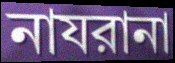
নাযরানা